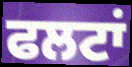
ਫਲਟਾਂ